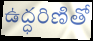
ఉద్ధరిణితో